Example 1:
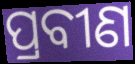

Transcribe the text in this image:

ପ୍ରବୀଣ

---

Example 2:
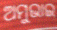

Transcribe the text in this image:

ଅମୁଭାଇ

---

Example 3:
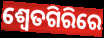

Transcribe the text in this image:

ଶ୍ୱେତଗିରିରେ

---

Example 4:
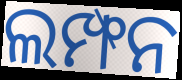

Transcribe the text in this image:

ଲମ୍ଫନ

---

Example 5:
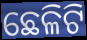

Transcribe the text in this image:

ଛେଳିଟି